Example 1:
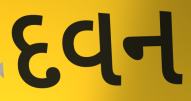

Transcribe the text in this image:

દવન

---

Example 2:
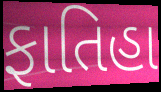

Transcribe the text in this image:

ફાતિહા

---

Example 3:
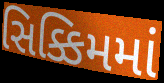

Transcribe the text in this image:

સિક્કિમમાં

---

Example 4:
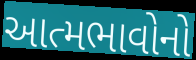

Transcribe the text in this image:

આત્મભાવોનો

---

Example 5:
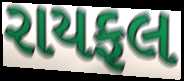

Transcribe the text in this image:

રાયફલ